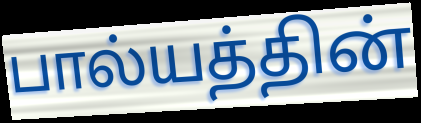
பால்யத்தின்